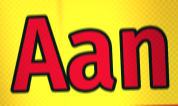
Aan